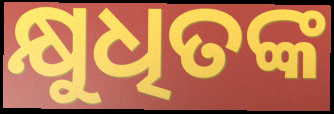
କ୍ଷୁଧିତଙ୍କ